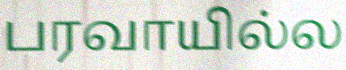
பரவாயில்ல